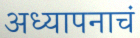
अध्यापनाचं